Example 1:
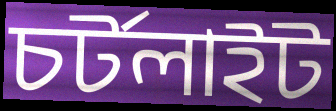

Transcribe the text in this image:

চর্টলাইট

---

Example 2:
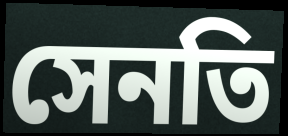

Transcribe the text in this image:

সেনতি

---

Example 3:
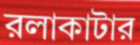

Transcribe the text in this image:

রলাকাটার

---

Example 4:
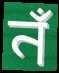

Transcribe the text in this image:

নঁ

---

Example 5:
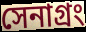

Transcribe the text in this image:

সেনাগ্রং